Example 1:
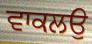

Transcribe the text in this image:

ਵਾਕਲਉ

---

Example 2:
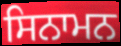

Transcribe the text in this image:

ਸਿਨਾਮਨ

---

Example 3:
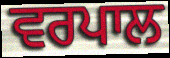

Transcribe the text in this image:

ਵਰਪਾਲ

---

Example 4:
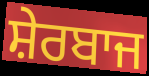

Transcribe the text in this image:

ਸ਼ੇਰਬਾਜ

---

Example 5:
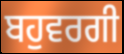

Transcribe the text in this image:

ਬਹੁਵਰਗੀ